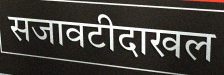
सजावटीदाखल